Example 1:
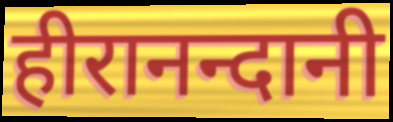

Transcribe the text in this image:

हीरानन्दानी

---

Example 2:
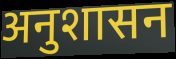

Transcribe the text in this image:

अनुशासन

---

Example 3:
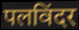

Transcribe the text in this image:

पलविंदर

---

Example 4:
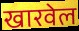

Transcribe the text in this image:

खारवेल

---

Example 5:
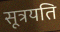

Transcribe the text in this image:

सूत्रयति